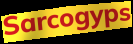
Sarcogyps